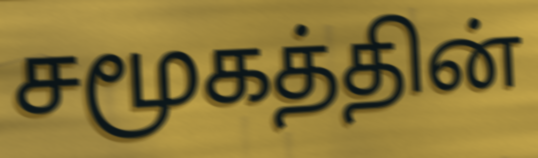
சமூகத்தின்